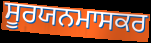
ਸੂਰਯਨਮਾਸਕਰ